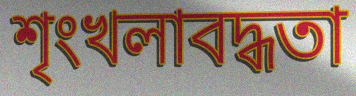
শৃংখলাবদ্ধতা